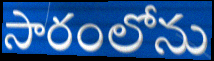
సారంలోను